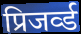
प्रिजर्व्ड